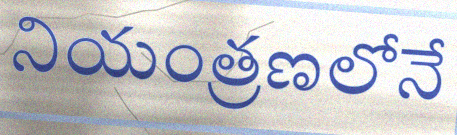
నియంత్రణలోనే